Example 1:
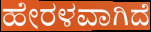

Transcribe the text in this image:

ಹೇರಳವಾಗಿದೆ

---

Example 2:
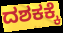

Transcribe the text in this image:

ದಶಕಕ್ಕೆ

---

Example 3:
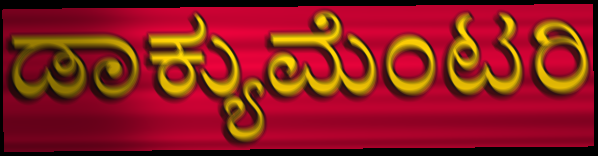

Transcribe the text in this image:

ಡಾಕ್ಯುಮೆಂಟರಿ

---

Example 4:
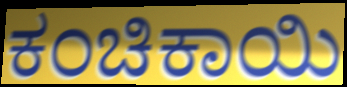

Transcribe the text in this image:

ಕಂಚಿಕಾಯಿ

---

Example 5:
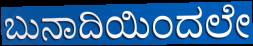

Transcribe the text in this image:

ಬುನಾದಿಯಿಂದಲೇ